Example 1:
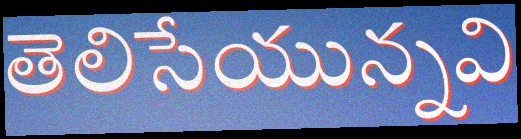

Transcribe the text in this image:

తెలిసేయున్నవి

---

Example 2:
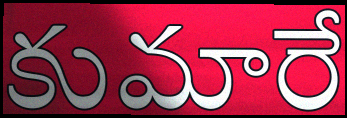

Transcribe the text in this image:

కుమారే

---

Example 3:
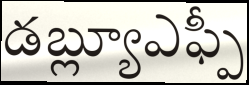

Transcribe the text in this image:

డబ్ల్యూఎఫ్పీ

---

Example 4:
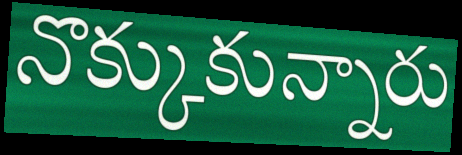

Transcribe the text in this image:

నొక్కుకున్నారు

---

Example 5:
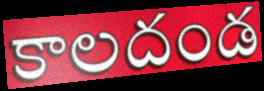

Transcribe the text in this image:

కాలదండ